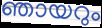
ഞായറും